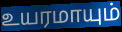
உயரமாயும்